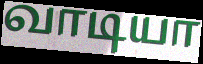
வாடியா